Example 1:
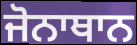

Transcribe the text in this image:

ਜੋਨਾਥਾਨ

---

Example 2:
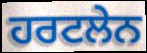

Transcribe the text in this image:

ਹਰਟਲੇਨ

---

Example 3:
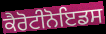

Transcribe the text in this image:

ਕੈਰੋਟੀਨੋਇਡਸ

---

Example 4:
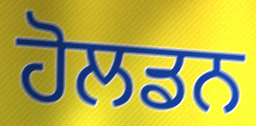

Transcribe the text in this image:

ਹੋਲਡਨ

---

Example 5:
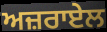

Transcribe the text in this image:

ਅਜ਼ਰਾਏਲ